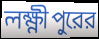
লক্ষ্ণীপুরের